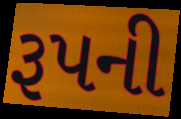
રૂપની